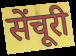
सेंचूरी